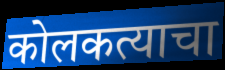
कोलकत्याचा